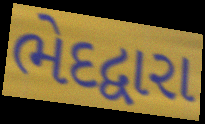
ભેદદ્વારા